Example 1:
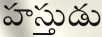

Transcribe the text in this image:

హస్తుడు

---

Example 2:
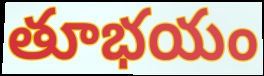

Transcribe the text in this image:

తూభయం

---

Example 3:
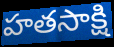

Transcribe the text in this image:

హతసాక్షి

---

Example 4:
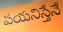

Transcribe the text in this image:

పయనిస్తేనే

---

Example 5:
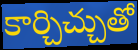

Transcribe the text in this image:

కార్చిచ్చుతో